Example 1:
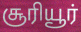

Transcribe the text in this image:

சூரியூர்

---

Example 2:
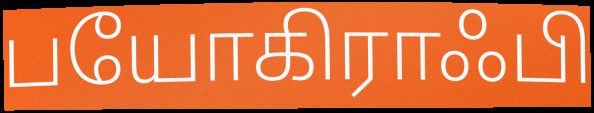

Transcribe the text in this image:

பயோகிராஃபி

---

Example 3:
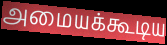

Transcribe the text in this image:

அமையக்கூடிய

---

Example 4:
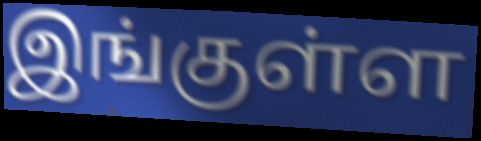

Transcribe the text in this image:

இங்குள்ள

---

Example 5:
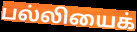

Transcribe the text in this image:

பல்லியைக்